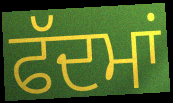
ਫੱਦਮਾਂ